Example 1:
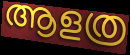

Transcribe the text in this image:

ആളത്ര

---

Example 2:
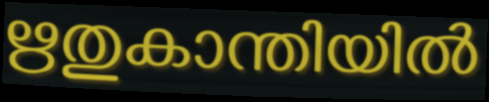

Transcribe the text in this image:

ഋതുകാന്തിയിൽ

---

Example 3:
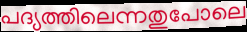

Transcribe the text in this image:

പദ്യത്തിലെന്നതുപോലെ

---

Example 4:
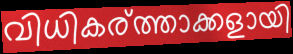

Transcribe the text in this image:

വിധികര്ത്താക്കളായി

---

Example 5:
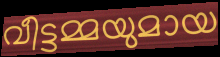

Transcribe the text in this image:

വീട്ടമ്മയുമായ